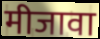
मीजावा